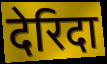
देरिदा